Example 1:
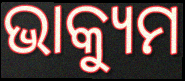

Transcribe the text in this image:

ଭାକ୍ୟୁମ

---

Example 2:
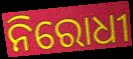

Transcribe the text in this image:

ନିରୋଧୀ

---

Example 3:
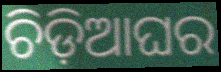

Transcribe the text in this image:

ଚିଡ଼ିଆଘର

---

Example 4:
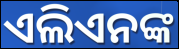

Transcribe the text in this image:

ଏଲିଏନଙ୍କ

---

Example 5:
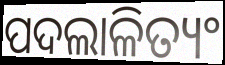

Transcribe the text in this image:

ପଦଲାଳିତ୍ୟଂ